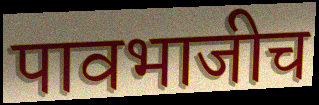
पावभाजीच